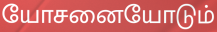
யோசனையோடும்